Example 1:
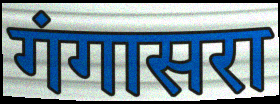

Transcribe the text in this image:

गंगासरा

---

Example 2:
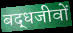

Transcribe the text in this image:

बद्धजीवों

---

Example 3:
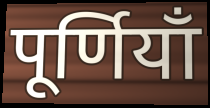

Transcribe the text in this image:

पूर्णियाँ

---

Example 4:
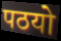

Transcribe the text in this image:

पठयो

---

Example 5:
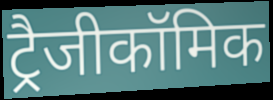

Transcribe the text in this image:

ट्रैजीकॉमिक